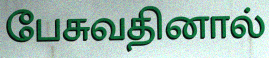
பேசுவதினால்